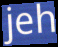
jeh